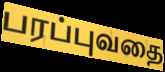
பரப்புவதை